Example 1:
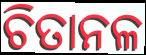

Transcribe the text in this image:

ଚିତାନଳ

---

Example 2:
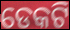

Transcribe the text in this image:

ଡେକଟି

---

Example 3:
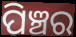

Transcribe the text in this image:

ପିଞ୍ଚର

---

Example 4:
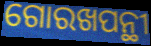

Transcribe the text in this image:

ଗୋରଖପନ୍ଥୀ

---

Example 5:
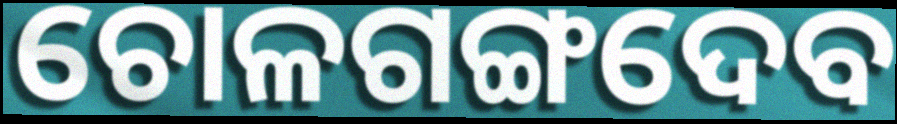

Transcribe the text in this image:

ଚୋଳଗଙ୍ଗଦେବ